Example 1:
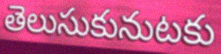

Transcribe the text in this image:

తెలుసుకునుటకు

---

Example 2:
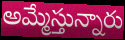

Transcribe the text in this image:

అమ్మేస్తున్నారు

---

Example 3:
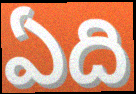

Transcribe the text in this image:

ఏది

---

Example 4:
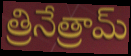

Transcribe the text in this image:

త్రినేత్రామ్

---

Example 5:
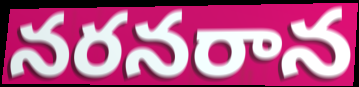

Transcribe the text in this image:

నరనరాన